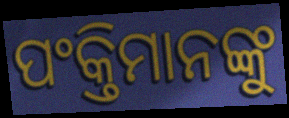
ପଂକ୍ତିମାନଙ୍କୁ